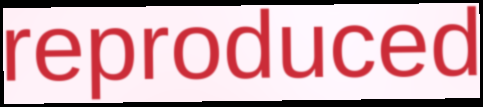
reproduced